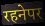
रहनेपर